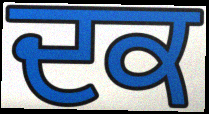
ਦਕ